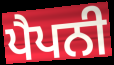
ਪੈਪਨੀ